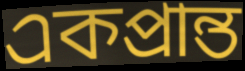
একপ্রান্ত